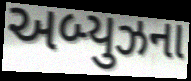
અબ્યુઝના